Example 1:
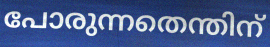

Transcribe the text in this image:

പോരുന്നതെന്തിന്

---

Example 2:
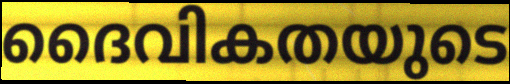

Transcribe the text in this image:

ദൈവികതയുടെ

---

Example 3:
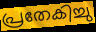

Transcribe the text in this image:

പ്രതേകിച്ചു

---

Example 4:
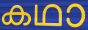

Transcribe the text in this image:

കഥാ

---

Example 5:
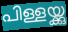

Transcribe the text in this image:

പിള്ളയ്ക്കു